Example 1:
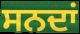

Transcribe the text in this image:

ਸਨਦਾਂ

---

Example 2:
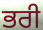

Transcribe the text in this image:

ਭਰੀ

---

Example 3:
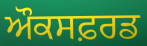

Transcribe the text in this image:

ਔਕਸਫ਼ਰਡ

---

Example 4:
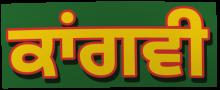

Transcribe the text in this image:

ਕਾਂਗਵੀ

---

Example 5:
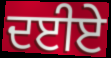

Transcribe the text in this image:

ਦਈਏ